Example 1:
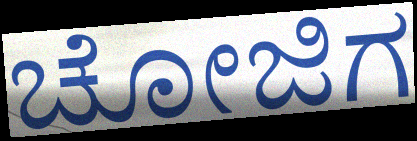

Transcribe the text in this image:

ಚೋಜಿಗ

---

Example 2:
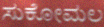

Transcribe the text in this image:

ಸುಕೋಮಲ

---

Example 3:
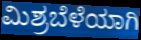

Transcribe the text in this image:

ಮಿಶ್ರಬೆಳೆಯಾಗಿ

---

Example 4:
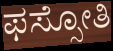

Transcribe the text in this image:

ಫಸ್ಸೋತಿ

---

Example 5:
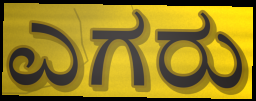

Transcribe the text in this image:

ಎಗರು